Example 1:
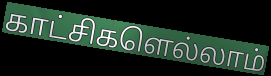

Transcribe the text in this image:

காட்சிகளெல்லாம்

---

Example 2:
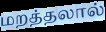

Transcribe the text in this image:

மறத்தலால்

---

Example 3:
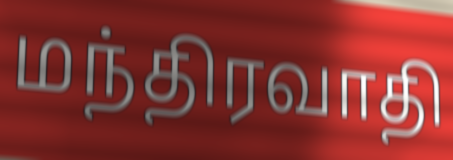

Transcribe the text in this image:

மந்திரவாதி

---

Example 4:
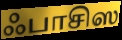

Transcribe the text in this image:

ஃபாசிஸ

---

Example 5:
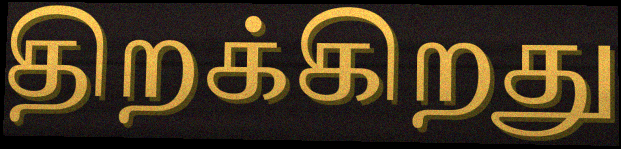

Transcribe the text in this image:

திறக்கிறது